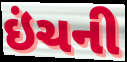
ઇંચની